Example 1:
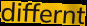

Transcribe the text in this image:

differnt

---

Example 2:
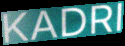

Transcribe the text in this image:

KADRI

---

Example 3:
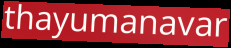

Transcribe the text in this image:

thayumanavar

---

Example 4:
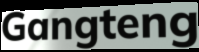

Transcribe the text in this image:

Gangteng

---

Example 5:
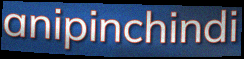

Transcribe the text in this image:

anipinchindi